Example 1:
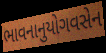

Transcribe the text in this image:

ભાવનાનુયોગવસેન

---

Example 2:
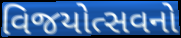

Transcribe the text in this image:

વિજયોત્સવનો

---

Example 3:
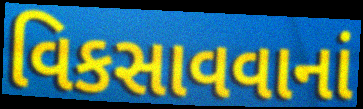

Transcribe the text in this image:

વિકસાવવાનાં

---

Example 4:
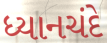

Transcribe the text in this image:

ધ્યાનચંદે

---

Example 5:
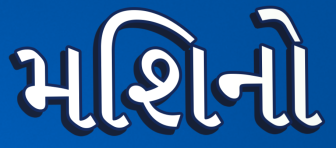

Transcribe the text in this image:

મશિનો